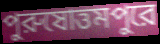
পুরুষোত্তমপুরে